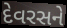
દેવરસને